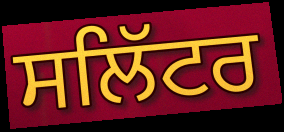
ਸਲਿੱਟਰ